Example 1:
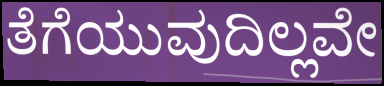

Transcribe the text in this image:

ತೆಗೆಯುವುದಿಲ್ಲವೇ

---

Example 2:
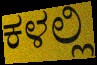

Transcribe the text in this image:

ಕಳಲ್ಲಿ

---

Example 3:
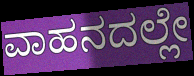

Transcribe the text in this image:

ವಾಹನದಲ್ಲೇ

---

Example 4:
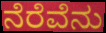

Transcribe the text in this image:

ನೆರೆವೆನು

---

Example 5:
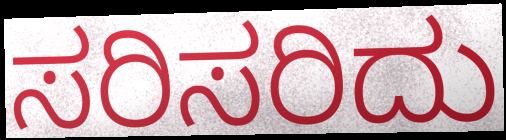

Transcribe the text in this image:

ಸರಿಸರಿದು